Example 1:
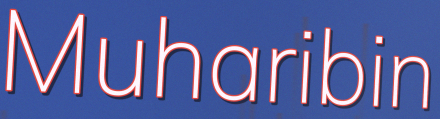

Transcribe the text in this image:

Muharibin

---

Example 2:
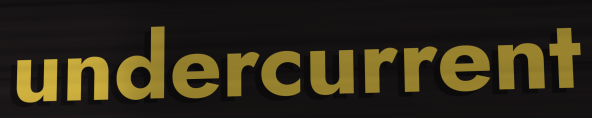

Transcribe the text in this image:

undercurrent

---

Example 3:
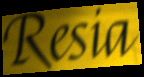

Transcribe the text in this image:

Resia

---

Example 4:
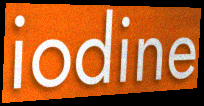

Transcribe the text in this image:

iodine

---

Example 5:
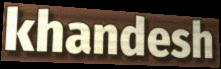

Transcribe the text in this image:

khandesh